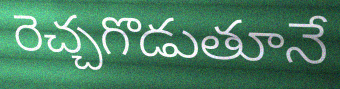
రెచ్చగొడుతూనే